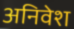
अनिवेश